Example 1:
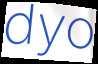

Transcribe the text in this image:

dyo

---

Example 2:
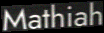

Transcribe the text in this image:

Mathiah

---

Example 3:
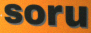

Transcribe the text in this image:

soru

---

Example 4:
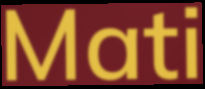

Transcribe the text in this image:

Mati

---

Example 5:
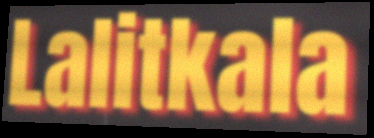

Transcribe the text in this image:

Lalitkala